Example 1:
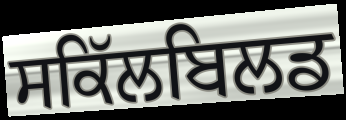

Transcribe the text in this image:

ਸਕਿੱਲਬਿਲਡ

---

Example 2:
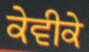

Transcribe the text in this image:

ਕੇਵੀਕੇ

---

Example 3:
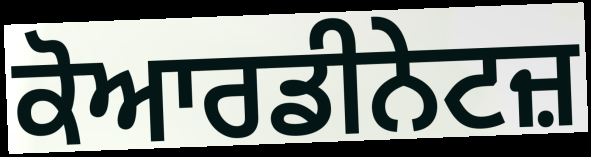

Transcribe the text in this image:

ਕੋਆਰਡੀਨੇਟਜ਼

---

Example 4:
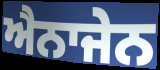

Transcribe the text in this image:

ਐਨਾਜੇਨ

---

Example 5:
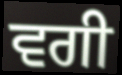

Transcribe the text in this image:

ਵਗੀ